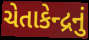
ચેતાકેન્દ્રનું